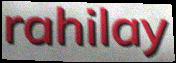
rahilay